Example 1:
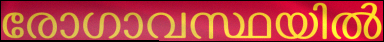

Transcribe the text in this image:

രോഗാവസ്ഥയിൽ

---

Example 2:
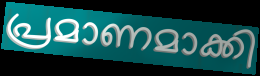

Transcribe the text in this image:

പ്രമാണമാക്കി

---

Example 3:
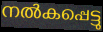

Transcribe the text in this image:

നൽകപ്പെട്ടു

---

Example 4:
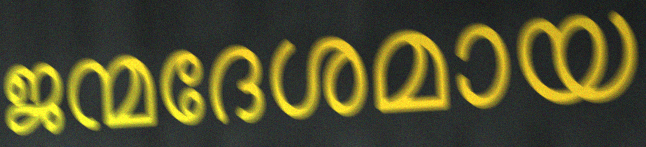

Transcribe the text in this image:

ജന്മദേശമായ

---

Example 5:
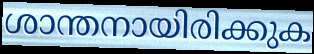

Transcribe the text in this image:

ശാന്തനായിരിക്കുക